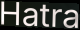
Hatra